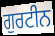
ਗੁਰਟੀਨ